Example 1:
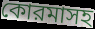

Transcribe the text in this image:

কোরমাসহ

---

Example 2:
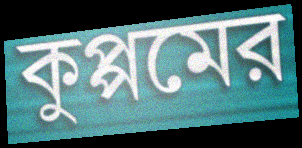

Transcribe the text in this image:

কুপ্পমের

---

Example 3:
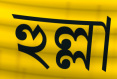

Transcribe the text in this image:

হুল্লা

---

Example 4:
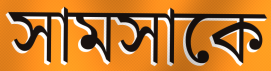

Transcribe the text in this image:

সামসাকে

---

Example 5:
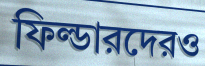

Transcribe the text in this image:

ফিল্ডারদেরও